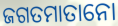
ଜଗତମାତାନୋ